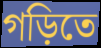
গড়িতে